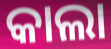
କାଲା